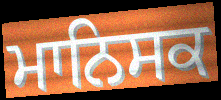
ਮਾਨਿਸਕ